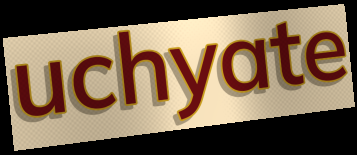
uchyate